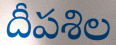
దీపశిల